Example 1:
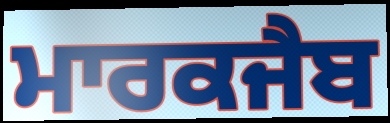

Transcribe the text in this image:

ਮਾਰਕਜੈਬ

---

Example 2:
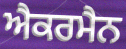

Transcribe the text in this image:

ਐਕਰਮੈਨ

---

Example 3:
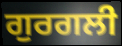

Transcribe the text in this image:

ਗੁਰਗਲੀ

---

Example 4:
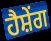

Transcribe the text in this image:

ਹੈਸ਼ੇਂਗ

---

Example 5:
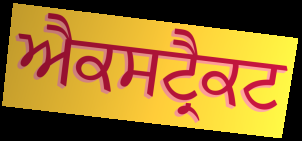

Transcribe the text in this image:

ਐਕਸਟ੍ਰੈਕਟ